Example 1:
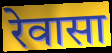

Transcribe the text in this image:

रेवासा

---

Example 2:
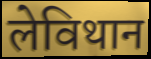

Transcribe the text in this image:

लेविथान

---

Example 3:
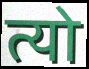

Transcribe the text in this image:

त्यो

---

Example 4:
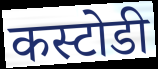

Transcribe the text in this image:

कस्टोडी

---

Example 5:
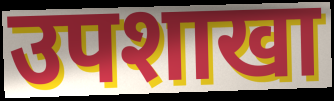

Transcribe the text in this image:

उपशाखा